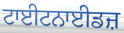
ਟਾਈਟਨਾਈਡਜ਼